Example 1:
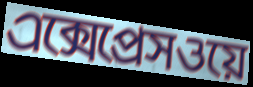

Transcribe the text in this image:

এক্সেপ্রেসওয়ে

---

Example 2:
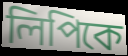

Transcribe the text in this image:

লিপিকে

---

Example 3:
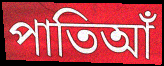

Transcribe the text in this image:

পাতিআঁ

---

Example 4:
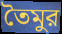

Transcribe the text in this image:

তৈমুর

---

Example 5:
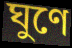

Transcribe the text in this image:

ঘুণে